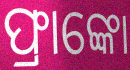
ଫ୍ରାଙ୍କୋ